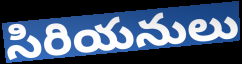
సిరియనులు